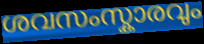
ശവസംസ്കാരവും